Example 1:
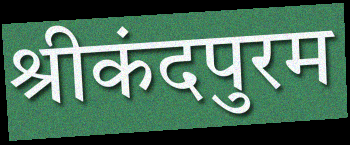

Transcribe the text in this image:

श्रीकंदपुरम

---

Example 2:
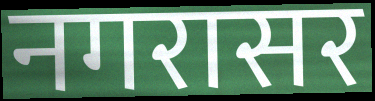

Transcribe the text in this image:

नगरासर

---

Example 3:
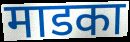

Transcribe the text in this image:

माडका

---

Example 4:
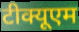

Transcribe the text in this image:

टीक्यूएम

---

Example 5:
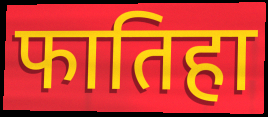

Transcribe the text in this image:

फातिहा